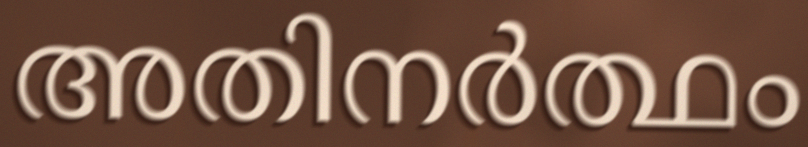
അതിനർത്ഥം